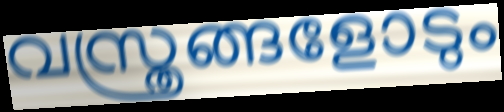
വസ്ത്രങ്ങളോടും